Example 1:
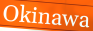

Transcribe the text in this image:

Okinawa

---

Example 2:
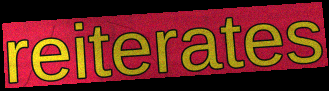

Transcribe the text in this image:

reiterates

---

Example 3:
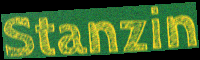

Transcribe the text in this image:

Stanzin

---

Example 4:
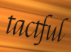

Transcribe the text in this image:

tactful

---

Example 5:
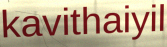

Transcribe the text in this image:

kavithaiyil